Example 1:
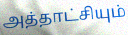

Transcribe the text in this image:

அத்தாட்சியும்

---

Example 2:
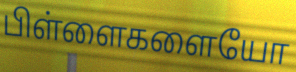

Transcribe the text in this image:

பிள்ளைகளையோ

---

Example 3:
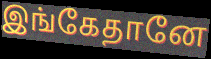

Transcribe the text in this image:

இங்கேதானே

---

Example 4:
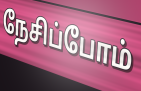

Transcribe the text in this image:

நேசிப்போம்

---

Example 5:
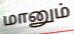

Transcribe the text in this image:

மானும்